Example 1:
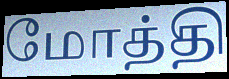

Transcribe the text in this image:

மோத்தி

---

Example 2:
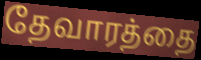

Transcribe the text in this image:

தேவாரத்தை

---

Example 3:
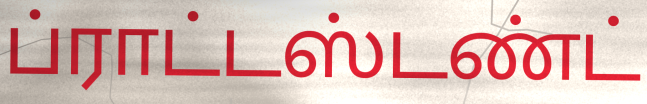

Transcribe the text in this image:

ப்ராட்டஸ்டண்ட்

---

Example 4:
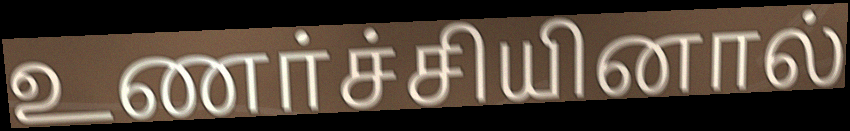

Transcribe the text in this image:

உணர்ச்சியினால்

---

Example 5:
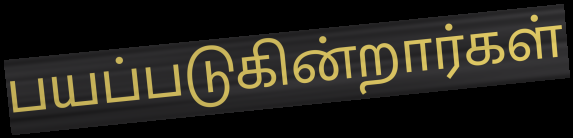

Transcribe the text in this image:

பயப்படுகின்றார்கள்